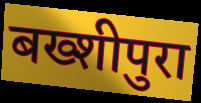
बख्शीपुरा